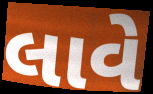
લાવે